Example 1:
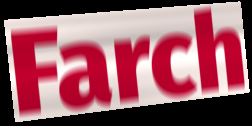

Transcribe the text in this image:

Farch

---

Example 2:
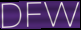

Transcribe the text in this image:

DFW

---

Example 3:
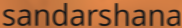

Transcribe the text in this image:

sandarshana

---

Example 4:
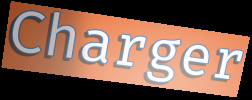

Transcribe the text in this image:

Charger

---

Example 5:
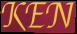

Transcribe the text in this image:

KEN